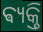
ଵ୍ଯକ୍ତି